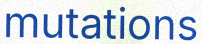
mutations